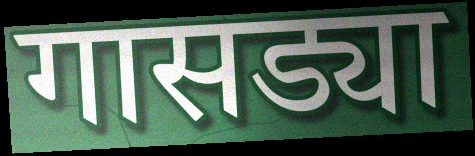
गासड्या